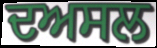
ਦਅਸਲ